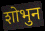
शोभुन